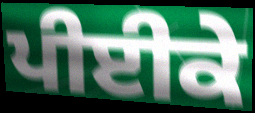
ਪੀਈਕੇ